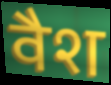
वैश